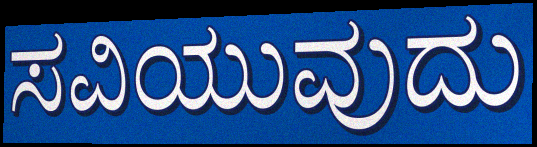
ಸವಿಯುವುದು